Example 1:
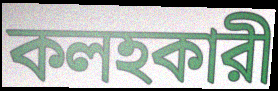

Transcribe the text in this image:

কলহকারী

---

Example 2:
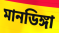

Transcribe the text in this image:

মানডিঙ্গা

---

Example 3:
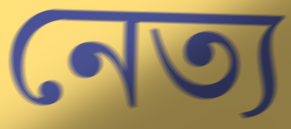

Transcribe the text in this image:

নেত্য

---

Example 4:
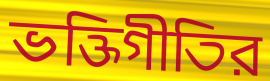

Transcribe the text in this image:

ভক্তিগীতির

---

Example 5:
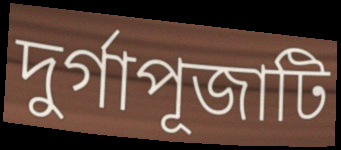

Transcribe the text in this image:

দুর্গাপূজাটি